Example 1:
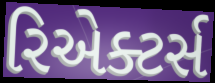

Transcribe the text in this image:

રિએક્ટર્સ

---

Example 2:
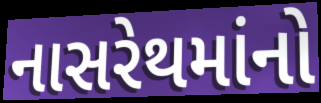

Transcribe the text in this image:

નાસરેથમાંનો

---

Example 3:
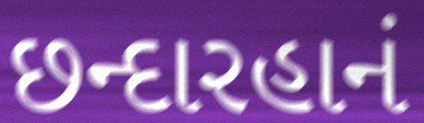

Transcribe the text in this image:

છન્દારહાનં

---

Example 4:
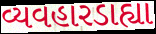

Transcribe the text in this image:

વ્યવહારડાહ્યા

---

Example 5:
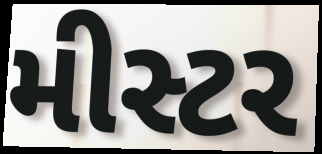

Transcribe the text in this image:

મીસ્ટર